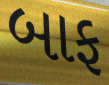
બાફ